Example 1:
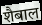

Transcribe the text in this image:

शैबाल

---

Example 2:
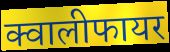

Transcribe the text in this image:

क्‍वालीफायर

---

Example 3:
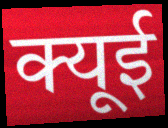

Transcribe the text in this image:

क्यूई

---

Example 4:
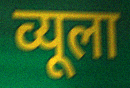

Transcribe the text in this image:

व्यूला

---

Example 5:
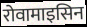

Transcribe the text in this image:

रोवामाइसिन